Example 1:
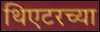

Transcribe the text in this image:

थिएटरच्या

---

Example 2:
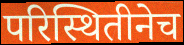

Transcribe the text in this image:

परिस्थितीनेच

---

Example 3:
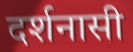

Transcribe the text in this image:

दर्शनासी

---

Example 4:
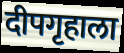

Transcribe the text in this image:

दीपगृहाला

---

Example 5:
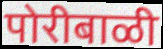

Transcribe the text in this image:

पोरीबाळी